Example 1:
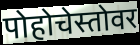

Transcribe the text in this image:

पोहोचेस्तोवर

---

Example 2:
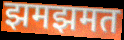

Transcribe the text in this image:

झमझमत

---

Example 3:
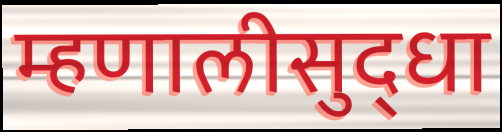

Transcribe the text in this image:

म्हणालीसुद्धा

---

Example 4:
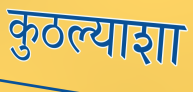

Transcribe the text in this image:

कुठल्याशा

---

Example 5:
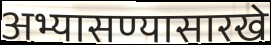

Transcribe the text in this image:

अभ्यासण्यासारखे